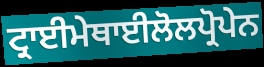
ਟ੍ਰਾਈਮੇਥਾਈਲੋਲਪ੍ਰੋਪੇਨ